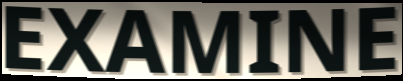
EXAMINE